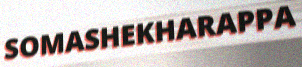
SOMASHEKHARAPPA